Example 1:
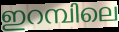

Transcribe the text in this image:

ഇറമ്പിലെ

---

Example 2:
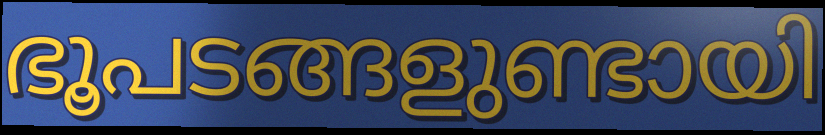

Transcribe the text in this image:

ഭൂപടങ്ങളുണ്ടായി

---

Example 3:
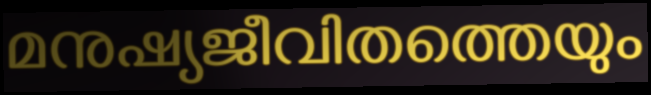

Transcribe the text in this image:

മനുഷ്യജീവിതത്തെയും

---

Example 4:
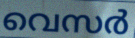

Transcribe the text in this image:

വെസർ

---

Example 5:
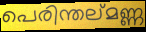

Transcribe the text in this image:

പെരിന്തല്മണ്ണ